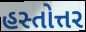
હસ્તોત્તર